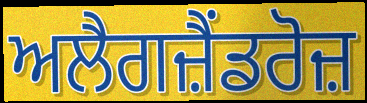
ਅਲੈਗਜ਼ੈਂਡਰੋਜ਼